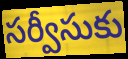
సర్వీసుకు